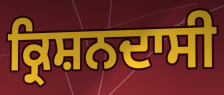
ਕ੍ਰਿਸ਼ਨਦਾਸੀ